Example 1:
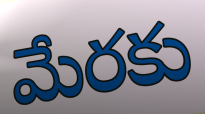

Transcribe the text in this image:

మేరకు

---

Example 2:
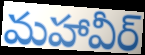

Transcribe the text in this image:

మహావీర్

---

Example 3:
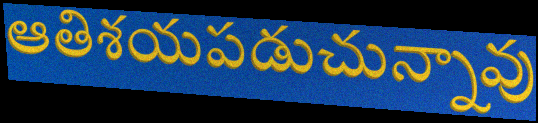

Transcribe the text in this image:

ఆతిశయపడుచున్నావు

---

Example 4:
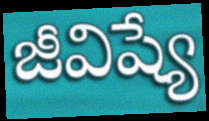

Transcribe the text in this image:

జీవిష్యే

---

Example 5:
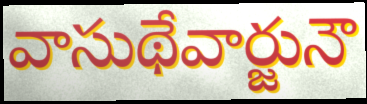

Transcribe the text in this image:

వాసుథేవార్జునౌ